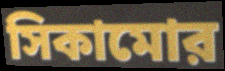
সিকামোর